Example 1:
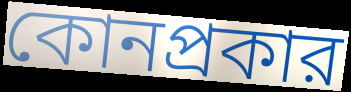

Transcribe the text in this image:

কোনপ্রকার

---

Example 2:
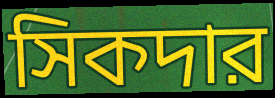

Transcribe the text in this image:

সিকদার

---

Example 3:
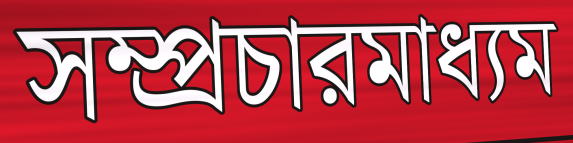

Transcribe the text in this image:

সম্প্রচারমাধ্যম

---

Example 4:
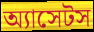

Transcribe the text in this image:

অ্যাসেটস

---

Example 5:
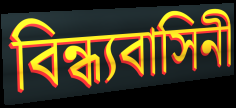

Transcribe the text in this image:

বিন্ধ্যবাসিনী